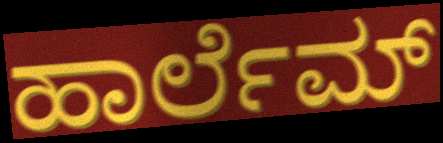
ಹಾರ್ಲೆಮ್